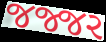
જજ્જર